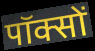
पॉक्सों